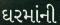
ઘરમાંની